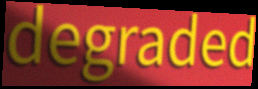
degraded